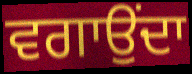
ਵਗਾਉਂਦਾ